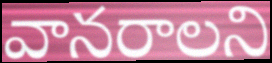
వానరాలని